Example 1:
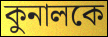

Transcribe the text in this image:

কুনালকে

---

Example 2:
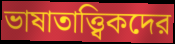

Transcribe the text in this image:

ভাষাতাত্ত্বিকদের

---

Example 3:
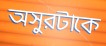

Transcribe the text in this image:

অসুরটাকে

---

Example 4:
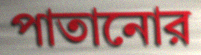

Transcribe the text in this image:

পাতানোর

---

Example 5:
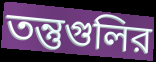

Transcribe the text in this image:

তন্তুগুলির